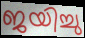
ജയിച്ചു